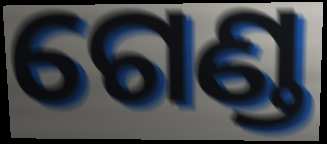
ଗେଣ୍ଡ